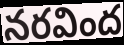
నరవింద